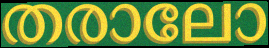
തരാലോ